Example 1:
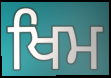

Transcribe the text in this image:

ਖਿਮ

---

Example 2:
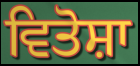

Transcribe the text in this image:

ਵਿਤੋਸ਼ਾ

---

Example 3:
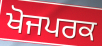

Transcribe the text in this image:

ਖੋਜਪਰਕ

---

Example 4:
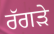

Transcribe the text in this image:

ਰੱਗੜੇ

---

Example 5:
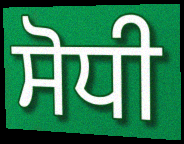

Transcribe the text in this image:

ਸੋਧੀ